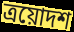
ত্ৰয়োদশ